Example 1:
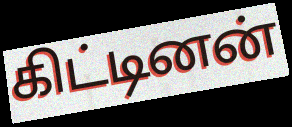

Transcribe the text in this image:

கிட்டினன்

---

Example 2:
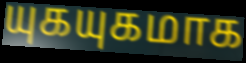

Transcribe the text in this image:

யுகயுகமாக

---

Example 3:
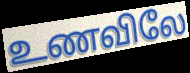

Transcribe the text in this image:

உணவிலே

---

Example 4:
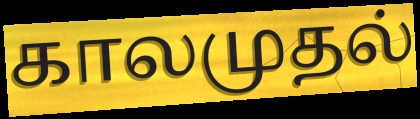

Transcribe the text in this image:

காலமுதல்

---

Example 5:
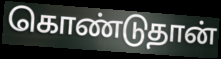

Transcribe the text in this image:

கொண்டுதான்